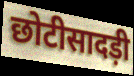
छोटीसादड़ी